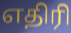
எதிரி